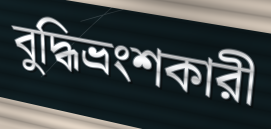
বুদ্ধিভ্রংশকারী